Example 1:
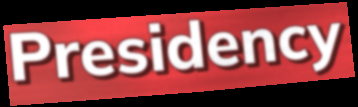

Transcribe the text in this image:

Presidency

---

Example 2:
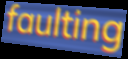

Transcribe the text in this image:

faulting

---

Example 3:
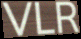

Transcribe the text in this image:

VLR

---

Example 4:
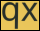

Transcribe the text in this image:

qx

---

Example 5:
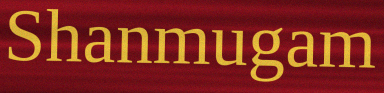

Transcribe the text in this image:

Shanmugam